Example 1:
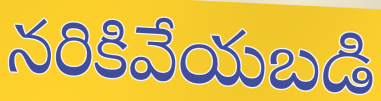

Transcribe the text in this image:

నరికివేయబడి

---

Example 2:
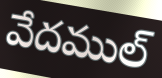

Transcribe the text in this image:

వేదముల్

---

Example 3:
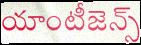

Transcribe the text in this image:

యాంటీజెన్స్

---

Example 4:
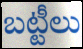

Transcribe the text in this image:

బట్టీలు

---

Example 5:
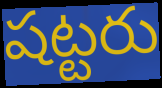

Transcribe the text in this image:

షట్టరు